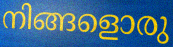
നിങ്ങളൊരു